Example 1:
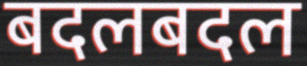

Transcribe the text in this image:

बदलबदल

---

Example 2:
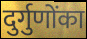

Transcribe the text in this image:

दुर्गुणोंका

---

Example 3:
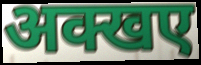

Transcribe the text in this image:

अक्खए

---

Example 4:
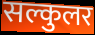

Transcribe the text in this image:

सल्कुलर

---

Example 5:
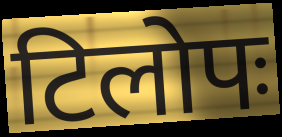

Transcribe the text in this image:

टिलोपः